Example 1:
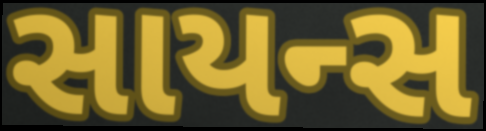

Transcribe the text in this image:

સાયન્સ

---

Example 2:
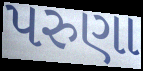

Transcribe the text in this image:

પરુણા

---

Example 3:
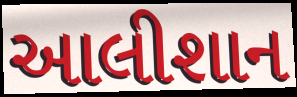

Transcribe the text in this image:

આલીશાન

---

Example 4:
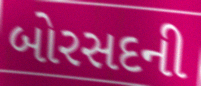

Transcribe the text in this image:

બોરસદની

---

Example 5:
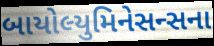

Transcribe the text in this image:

બાયોલ્યુમિનેસન્સના